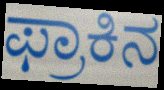
ಫ್ರಾಕಿನ